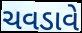
ચવડાવે